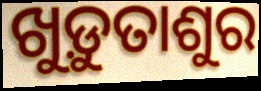
ଖୁଡ଼ୁତାଶୁର